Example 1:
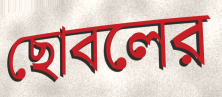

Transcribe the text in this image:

ছোবলের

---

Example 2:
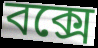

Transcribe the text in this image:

বক্সে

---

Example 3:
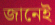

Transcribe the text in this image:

জানেই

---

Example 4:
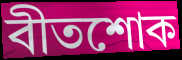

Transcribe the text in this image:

বীতশোক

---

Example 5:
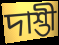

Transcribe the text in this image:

দাশ্তী